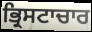
ਭ੍ਰਿਸਟਾਚਾਰ